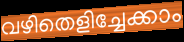
വഴിതെളിച്ചേക്കാം